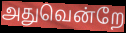
அதுவென்றே